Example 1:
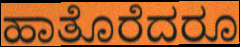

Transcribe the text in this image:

ಹಾತೊರೆದರೂ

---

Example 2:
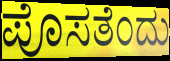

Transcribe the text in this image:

ಪೊಸತೆಂದು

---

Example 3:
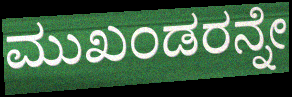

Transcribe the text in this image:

ಮುಖಂಡರನ್ನೇ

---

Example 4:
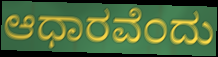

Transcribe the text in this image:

ಆಧಾರವೆಂದು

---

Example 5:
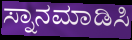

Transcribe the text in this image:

ಸ್ನಾನಮಾಡಿಸಿ